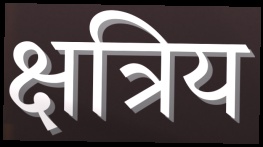
क्षत्रिय